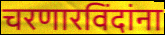
चरणारविंदांना